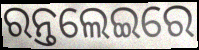
ରନ୍ତଲେଇରେ